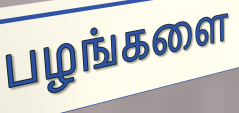
பழங்களை